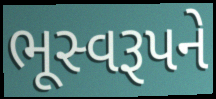
ભૂસ્વરૂપને